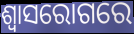
ଶ୍ଵାସରୋଗରେ